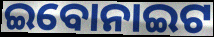
ଇବୋନାଇଟ